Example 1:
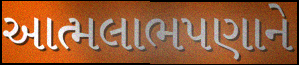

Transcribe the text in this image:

આત્મલાભપણાને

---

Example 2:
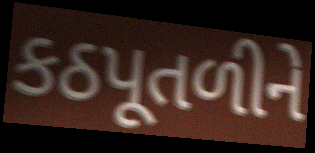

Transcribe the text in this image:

કઠપૂતળીને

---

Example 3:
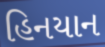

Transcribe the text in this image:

હિનયાન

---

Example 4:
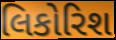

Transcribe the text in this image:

લિકોરિશ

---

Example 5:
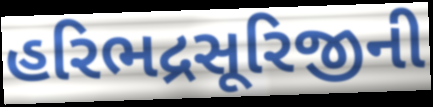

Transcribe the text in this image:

હરિભદ્રસૂરિજીની